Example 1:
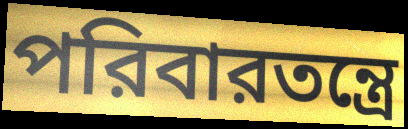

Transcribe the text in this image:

পরিবারতন্ত্রে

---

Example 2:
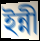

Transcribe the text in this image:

ইন্নী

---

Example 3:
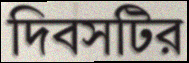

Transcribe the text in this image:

দিবসটির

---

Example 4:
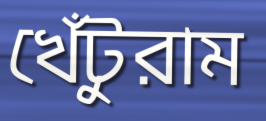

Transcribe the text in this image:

খেঁটুরাম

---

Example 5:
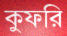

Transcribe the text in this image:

কুফরি